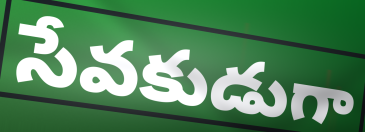
సేవకుడుగా